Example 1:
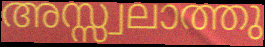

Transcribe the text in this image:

അസ്സ്വലാത്തു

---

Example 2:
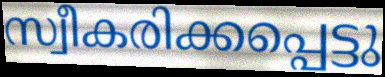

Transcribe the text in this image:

സ്വീകരിക്കപ്പെട്ടു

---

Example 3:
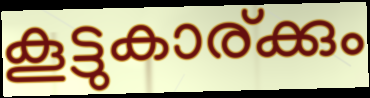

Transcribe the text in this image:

കൂട്ടുകാര്ക്കും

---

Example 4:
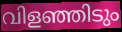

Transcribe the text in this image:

വിളഞ്ഞിടും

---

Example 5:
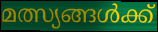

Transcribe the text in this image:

മത്സ്യങ്ങൾക്ക്